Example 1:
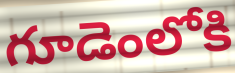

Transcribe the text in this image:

గూడెంలోకి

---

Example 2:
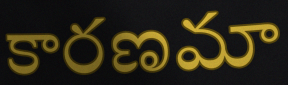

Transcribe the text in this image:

కారణమా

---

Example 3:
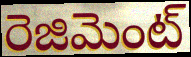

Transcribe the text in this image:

రెజిమెంట్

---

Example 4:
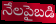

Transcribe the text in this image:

నేలపైబడి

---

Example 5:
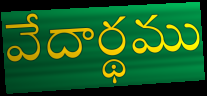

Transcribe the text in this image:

వేదార్థము